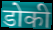
डोकी